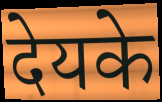
देयके